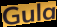
Gula